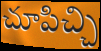
చూపిచ్చి